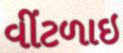
વીંટળાઇ